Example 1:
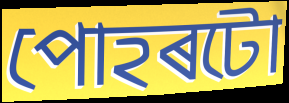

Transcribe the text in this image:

পোহৰটো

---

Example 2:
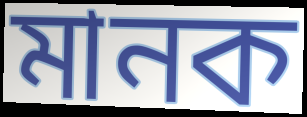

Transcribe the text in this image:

মানক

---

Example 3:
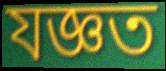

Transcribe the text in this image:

যজ্ঞত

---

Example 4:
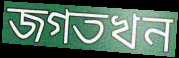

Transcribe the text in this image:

জগতখন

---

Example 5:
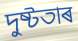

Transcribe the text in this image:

দুষ্টতাৰ